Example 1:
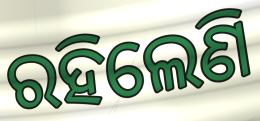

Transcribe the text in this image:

ରହିଲେଣି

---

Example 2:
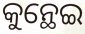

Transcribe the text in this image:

କୁନ୍ଥେଇ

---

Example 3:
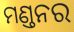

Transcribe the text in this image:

ମଣ୍ଡନର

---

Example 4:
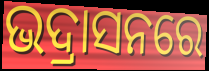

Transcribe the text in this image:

ଭଦ୍ରାସନରେ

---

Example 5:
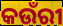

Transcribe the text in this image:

କଉଁରୀ